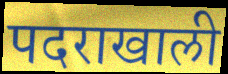
पदराखाली